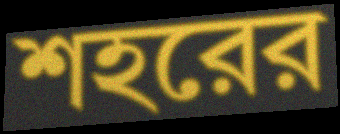
শহরের